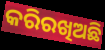
କରିରଖିଅଛି